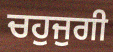
ਚਹੁਜੁਗੀ